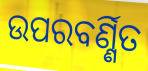
ଉପରବର୍ଣ୍ଣିତ